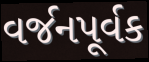
વર્જનપૂર્વક